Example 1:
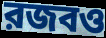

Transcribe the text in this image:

রজবও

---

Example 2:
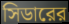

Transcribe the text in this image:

সিডারের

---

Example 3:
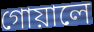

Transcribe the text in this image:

গোয়ালে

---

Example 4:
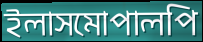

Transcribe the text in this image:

ইলাসমোপালপি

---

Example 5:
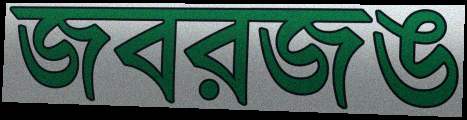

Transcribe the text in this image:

জবরজঙ